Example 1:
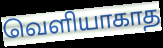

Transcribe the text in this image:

வெளியாகாத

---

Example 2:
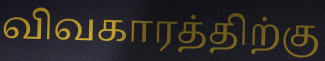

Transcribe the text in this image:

விவகாரத்திற்கு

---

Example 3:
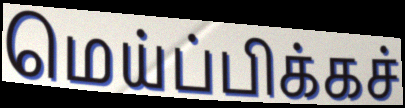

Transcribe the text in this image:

மெய்ப்பிக்கச்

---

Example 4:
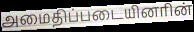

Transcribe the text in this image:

அமைதிப்படையினரின்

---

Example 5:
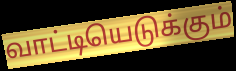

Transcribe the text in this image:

வாட்டியெடுக்கும்